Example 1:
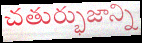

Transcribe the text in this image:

చతుర్భుజాన్ని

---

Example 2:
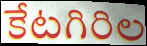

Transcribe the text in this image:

కేటగిరిల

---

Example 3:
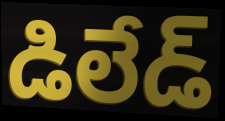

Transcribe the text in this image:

డిలేడ్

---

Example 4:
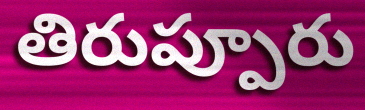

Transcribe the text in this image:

తిరుప్పూరు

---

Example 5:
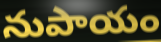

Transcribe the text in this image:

నుపాయం